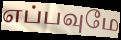
எப்பவுமே